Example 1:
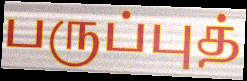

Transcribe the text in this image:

பருப்புத்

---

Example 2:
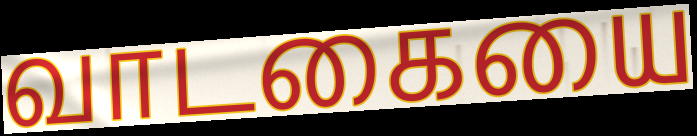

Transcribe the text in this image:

வாடகையை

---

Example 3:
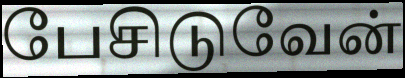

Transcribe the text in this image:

பேசிடுவேன்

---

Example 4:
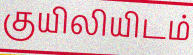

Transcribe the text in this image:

குயிலியிடம்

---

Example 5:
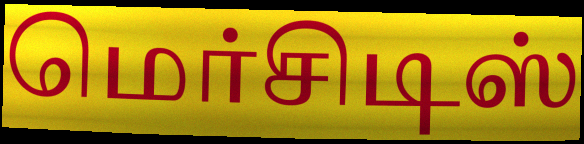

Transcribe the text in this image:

மெர்சிடிஸ்